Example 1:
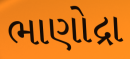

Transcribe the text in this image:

ભાણોદ્રા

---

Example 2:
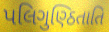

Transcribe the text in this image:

પલિગુણ્ઠિતાતિ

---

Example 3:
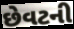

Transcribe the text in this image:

છેવટની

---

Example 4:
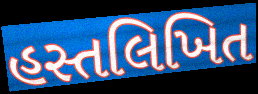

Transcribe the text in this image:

હસ્તલિખિત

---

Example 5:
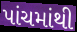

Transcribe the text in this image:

પાંચમાંથી